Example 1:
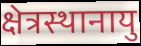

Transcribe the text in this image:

क्षेत्रस्थानायु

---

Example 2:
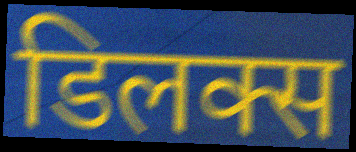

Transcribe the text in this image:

डिलक्स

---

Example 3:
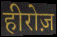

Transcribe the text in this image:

हीरोज़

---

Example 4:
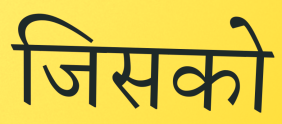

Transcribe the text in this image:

जिसको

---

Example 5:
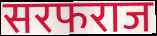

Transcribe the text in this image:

सरफराज